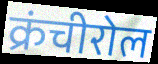
क्रंचीरोल